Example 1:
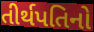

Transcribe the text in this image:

તીર્થપતિનો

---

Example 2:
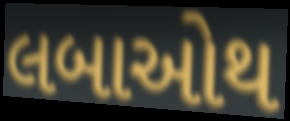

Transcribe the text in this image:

લબાઓથ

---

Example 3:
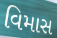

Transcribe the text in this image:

વિમાસ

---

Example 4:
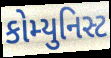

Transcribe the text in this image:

કોમ્યુનિસ્ટ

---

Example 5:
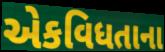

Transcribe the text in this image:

એકવિધતાના